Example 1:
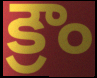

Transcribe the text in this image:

క్రౌం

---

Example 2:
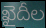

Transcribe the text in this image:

ఖైదీల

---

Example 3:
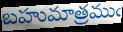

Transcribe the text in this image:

బహుమాత్రముఁ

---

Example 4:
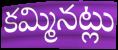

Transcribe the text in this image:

కమ్మినట్లు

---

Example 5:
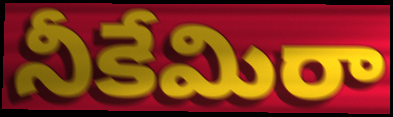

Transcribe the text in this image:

నీకేమిరా